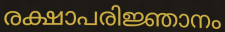
രക്ഷാപരിജ്ഞാനം